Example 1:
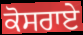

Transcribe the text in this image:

ਕੋਸਰਾਏ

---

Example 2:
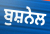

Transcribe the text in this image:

ਬੁਸ਼ਨੇਲ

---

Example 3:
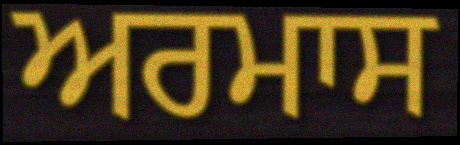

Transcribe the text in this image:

ਅਰਮਾਸ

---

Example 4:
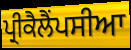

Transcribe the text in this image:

ਪ੍ਰੀਕੈਲੈਂਪਸੀਆ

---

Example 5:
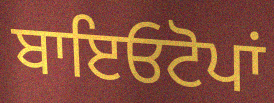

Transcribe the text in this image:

ਬਾਇਓਟੋਪਾਂ